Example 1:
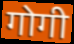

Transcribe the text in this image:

गोगी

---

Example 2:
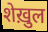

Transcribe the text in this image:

शेख़ुल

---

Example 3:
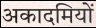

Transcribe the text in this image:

अकादमियों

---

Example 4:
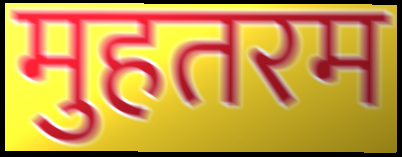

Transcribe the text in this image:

मुहतरम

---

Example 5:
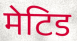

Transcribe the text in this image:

मेटिड